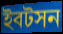
ইবটসন